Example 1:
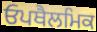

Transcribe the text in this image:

ਓਪਥੈਲਮਿਕ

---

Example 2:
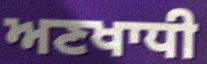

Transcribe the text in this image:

ਅਣਖਾਧੀ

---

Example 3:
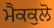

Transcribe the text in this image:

ਮੈਕਕੁਲੋ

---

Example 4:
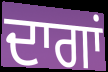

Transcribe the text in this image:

ਦਾਗਾਂ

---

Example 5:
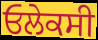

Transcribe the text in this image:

ਓਲੇਕਸੀ